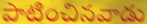
పాటించినవాడు